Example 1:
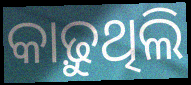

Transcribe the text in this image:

କାଢ଼ୁଥିଲି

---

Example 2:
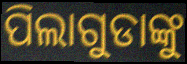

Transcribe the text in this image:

ପିଲାଗୁଡାଙ୍କୁ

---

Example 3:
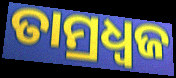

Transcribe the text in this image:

ତାମ୍ରଧ୍ୱଜ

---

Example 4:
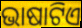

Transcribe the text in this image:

ଭାଷାଟିଏ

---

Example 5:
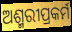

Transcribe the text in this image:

ଅଶ୍ମରୀପ୍ରକର୍ମ